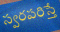
స్వరపరిస్తే